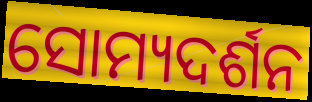
ସୋମ୍ଯଦର୍ଶନ